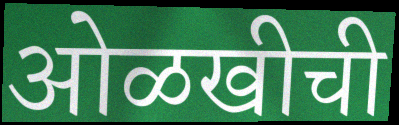
ओळखीची